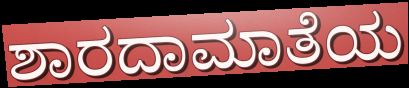
ಶಾರದಾಮಾತೆಯ